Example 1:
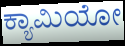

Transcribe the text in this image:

ಕ್ಯಾಮಿಯೋ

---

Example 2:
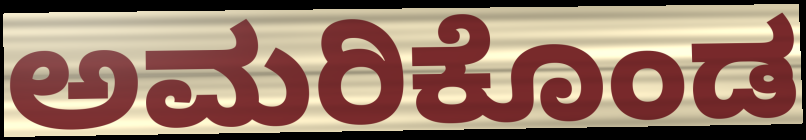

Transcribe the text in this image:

ಅಮರಿಕೊಂಡ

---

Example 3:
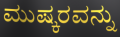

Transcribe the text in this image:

ಮುಷ್ಕರವನ್ನು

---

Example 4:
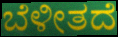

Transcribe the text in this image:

ಬೆಳೀತದೆ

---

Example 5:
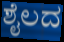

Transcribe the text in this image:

ಶೈಲದ